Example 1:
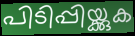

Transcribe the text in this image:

പിടിപ്പിയ്ക്കുക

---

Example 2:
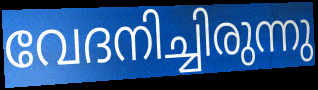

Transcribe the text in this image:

വേദനിച്ചിരുന്നു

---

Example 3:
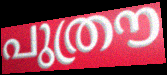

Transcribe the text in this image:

പുത്രൗ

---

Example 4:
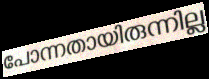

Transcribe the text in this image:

പോന്നതായിരുന്നില്ല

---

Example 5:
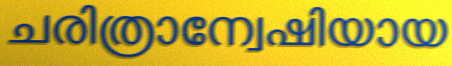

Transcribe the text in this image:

ചരിത്രാന്വേഷിയായ